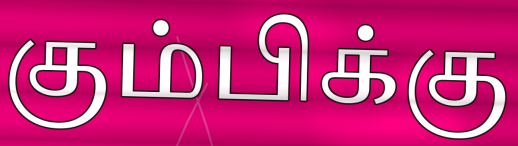
கும்பிக்கு